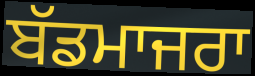
ਬੱਡਮਾਜਰਾ